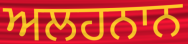
ਅਲਹਨਾਨ